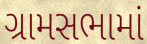
ગ્રામસભામાં